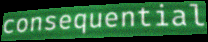
consequential